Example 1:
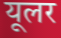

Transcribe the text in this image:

यूलर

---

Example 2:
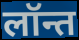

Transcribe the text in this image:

लॉन्त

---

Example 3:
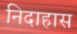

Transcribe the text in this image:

निदाहास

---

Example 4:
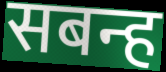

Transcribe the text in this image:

सबन्ह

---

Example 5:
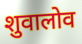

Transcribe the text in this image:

शुवालोव